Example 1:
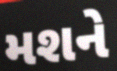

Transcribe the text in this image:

મશને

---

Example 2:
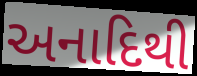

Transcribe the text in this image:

અનાદિથી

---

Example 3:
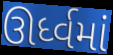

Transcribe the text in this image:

ઊર્ધ્વમાં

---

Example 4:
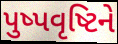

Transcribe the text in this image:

પુષ્પવૃષ્ટિને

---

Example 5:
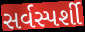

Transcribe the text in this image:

સર્વસ્પર્શી